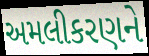
અમલીકરણને